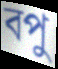
বপু